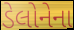
ડેલોનેના